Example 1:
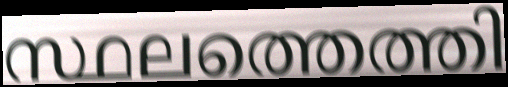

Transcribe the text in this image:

സ്ഥലത്തെത്തി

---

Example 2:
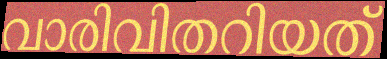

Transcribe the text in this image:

വാരിവിതറിയത്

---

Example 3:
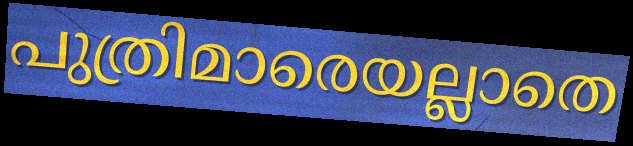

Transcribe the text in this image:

പുത്രിമാരെയല്ലാതെ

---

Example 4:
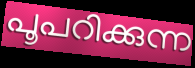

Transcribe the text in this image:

പൂപറിക്കുന്ന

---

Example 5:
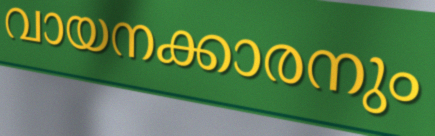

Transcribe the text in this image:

വായനക്കാരനും